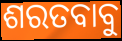
ଶରତବାବୁ